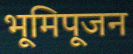
भूमिपूजन